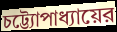
চট্ট্যোপাধ্যায়ের